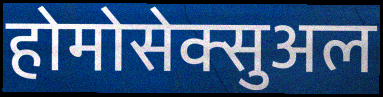
होमोसेक्सुअल